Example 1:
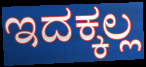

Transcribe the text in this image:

ಇದಕ್ಕಲ್ಲ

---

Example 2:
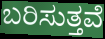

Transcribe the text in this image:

ಬರಿಸುತ್ತವೆ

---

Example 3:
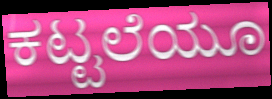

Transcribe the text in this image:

ಕಟ್ಟಲೆಯೂ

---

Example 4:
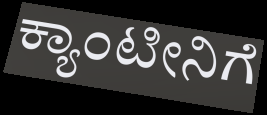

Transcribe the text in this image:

ಕ್ಯಾಂಟೀನಿಗೆ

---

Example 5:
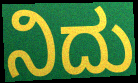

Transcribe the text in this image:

ನಿದು